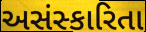
અસંસ્કારિતા